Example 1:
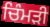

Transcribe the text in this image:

ਚਿੰਮੜੀ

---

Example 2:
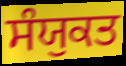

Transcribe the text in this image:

ਸੰਯੁਕਤ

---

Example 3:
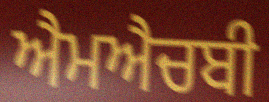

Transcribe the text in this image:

ਐਮਐਚਬੀ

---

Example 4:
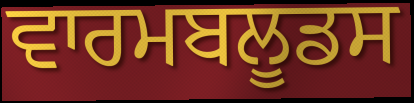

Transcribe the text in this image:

ਵਾਰਮਬਲੂਡਸ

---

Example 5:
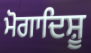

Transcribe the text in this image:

ਮੋਗਾਦਿਸ਼ੂ